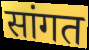
सांगत